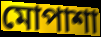
মোপাশা